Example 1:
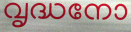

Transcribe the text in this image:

വൃദ്ധനോ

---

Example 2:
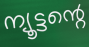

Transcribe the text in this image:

ന്യൂട്ടന്റെ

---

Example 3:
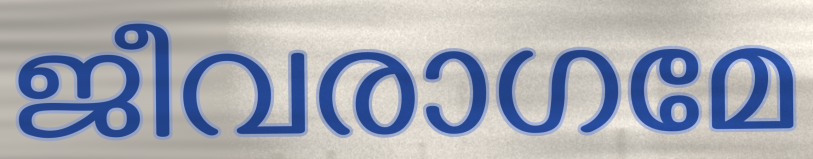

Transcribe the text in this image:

ജീവരാഗമേ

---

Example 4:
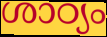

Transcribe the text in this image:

ശാഠ്യം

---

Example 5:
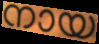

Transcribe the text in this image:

നായ